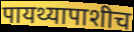
पायथ्यापाशीच